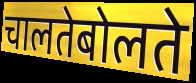
चालतेबोलते